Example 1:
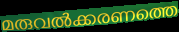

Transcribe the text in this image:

മരുവൽക്കരണത്തെ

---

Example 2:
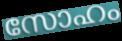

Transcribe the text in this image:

സോഹം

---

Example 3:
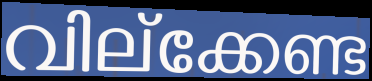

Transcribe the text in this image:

വില്ക്കേണ്ട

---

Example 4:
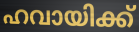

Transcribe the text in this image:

ഹവായിക്ക്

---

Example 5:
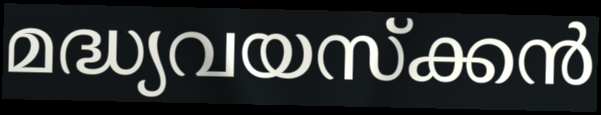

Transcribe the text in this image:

മദ്ധ്യവയസ്ക്കൻ